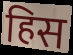
हिस